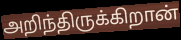
அறிந்திருக்கிறான்